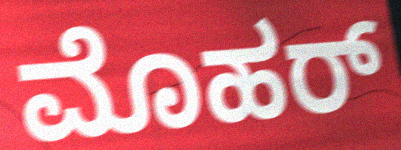
ಮೊಹರ್